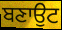
ਬਣਾਉਟ